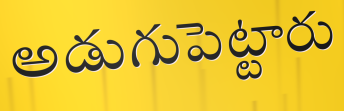
అడుగుపెట్టారు